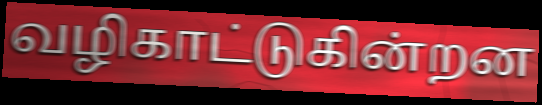
வழிகாட்டுகின்றன